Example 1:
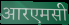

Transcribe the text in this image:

आरएमसी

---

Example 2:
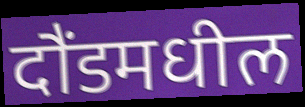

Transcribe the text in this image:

दौंडमधील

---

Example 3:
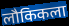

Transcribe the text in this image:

लौकिकला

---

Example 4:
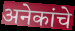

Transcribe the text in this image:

अनेकांचे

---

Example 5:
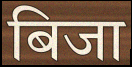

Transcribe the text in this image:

बिजा